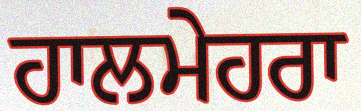
ਹਾਲਮੇਹਰਾ